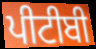
ਪੀਟੀਬੀ